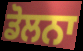
ਡੋਲਨਾ